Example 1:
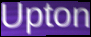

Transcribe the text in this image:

Upton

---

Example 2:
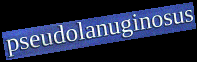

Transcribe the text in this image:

pseudolanuginosus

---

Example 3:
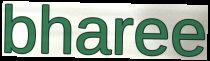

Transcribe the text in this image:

bharee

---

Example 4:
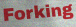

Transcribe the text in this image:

Forking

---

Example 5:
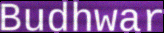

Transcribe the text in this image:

Budhwar